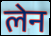
लेन